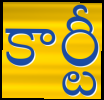
కార్టీ